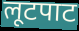
लूटपाट